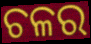
ଚଳର